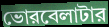
ভোরবেলাটার